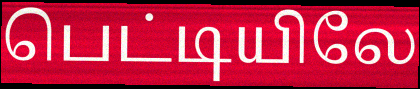
பெட்டியிலே